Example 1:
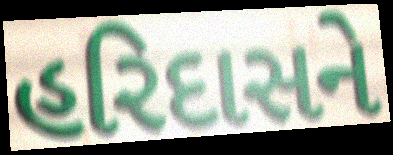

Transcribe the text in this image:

હરિદાસને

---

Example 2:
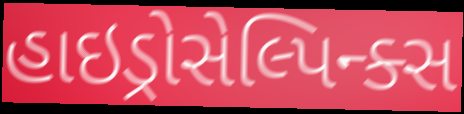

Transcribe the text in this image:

હાઇડ્રોસેલ્પિન્ક્સ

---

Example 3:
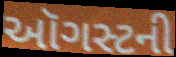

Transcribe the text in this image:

ઑગસ્ટની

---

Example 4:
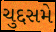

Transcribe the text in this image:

ચુદ્દસમે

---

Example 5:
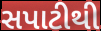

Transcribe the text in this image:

સપાટીથી